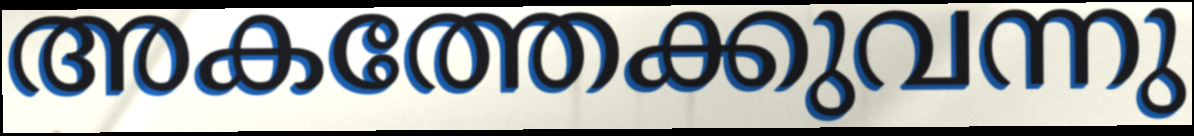
അകത്തേക്കുവന്നു